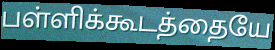
பள்ளிக்கூடத்தையே